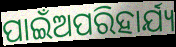
ପାଇଁଅପରିହାର୍ଯ୍ୟ